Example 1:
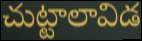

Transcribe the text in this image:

చుట్టాలావిడ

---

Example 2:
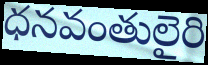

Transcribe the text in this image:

ధనవంతులైరి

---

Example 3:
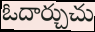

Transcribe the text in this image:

ఓదార్చుచు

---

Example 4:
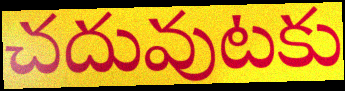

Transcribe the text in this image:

చదువుటకు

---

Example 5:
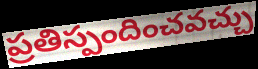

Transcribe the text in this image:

ప్రతిస్పందించవచ్చు